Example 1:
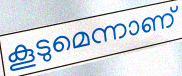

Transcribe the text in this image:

കൂടുമെന്നാണ്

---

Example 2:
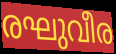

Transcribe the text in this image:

രഘുവീര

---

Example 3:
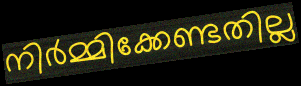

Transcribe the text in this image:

നിർമ്മിക്കേണ്ടതില്ല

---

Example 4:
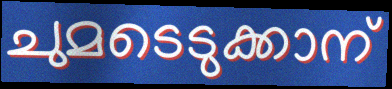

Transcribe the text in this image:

ചുമടെടുക്കാന്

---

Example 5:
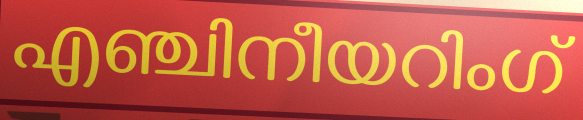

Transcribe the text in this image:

എഞ്ചിനീയറിംഗ്